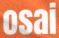
osai